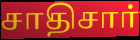
சாதிசார்